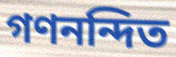
গণনন্দিত